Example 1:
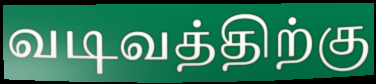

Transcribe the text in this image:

வடிவத்திற்கு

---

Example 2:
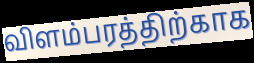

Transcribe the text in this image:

விளம்பரத்திற்காக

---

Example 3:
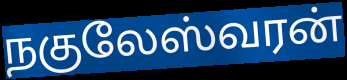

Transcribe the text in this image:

நகுலேஸ்வரன்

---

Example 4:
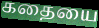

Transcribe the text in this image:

கதையை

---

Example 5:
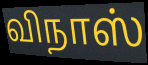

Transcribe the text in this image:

விநாஸ்